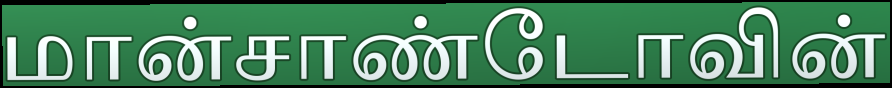
மான்சாண்டோவின்